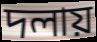
দলায়